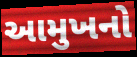
આમુખનો